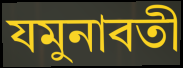
যমুনাবতী